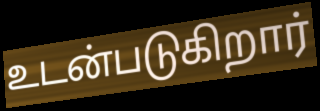
உடன்படுகிறார்